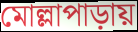
মোল্লাপাড়ায়